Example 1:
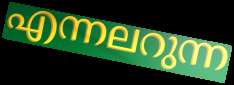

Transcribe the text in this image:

എന്നലറുന്ന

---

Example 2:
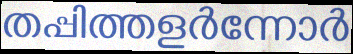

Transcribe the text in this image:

തപ്പിത്തളർന്നോർ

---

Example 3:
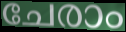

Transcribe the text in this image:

ചേരാം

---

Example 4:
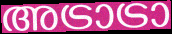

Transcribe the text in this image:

അട്രാട്രാ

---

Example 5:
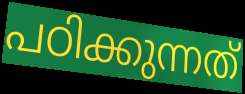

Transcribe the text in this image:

പഠിക്കുന്നത്